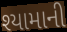
શ્યામાની